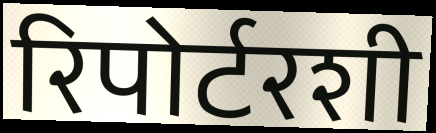
रिपोर्टरशी